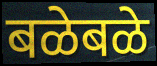
बळेबळे